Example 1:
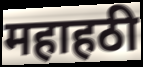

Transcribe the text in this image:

महाहठी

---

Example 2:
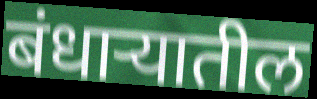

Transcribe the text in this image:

बंधाऱ्यातील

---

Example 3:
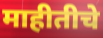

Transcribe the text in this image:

माहीतीचे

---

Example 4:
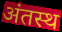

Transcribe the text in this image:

अंतस्थ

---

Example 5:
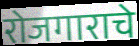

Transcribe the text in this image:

रोजगाराचे